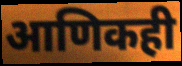
आणिकही